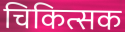
चिकित्सक